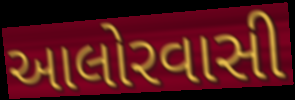
આલોરવાસી